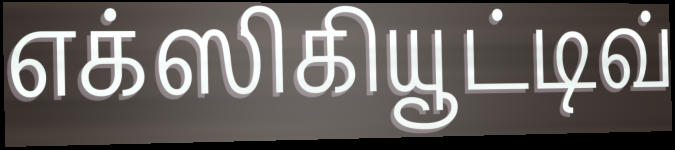
எக்ஸிகியூட்டிவ்